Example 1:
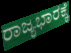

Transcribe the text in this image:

ರಾಜ್ಯಭಾರಕ್ಕೆ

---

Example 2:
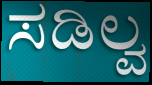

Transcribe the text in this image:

ಸಡಿಲ್ವ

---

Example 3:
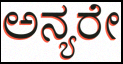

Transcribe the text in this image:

ಅನ್ಯರೇ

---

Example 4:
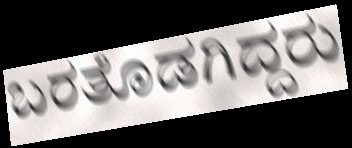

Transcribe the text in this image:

ಬರತೊಡಗಿದ್ದರು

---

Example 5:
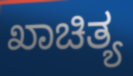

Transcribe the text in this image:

ಖಾಚಿತ್ಯ